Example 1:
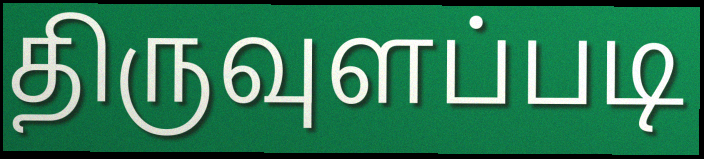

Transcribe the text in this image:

திருவுளப்படி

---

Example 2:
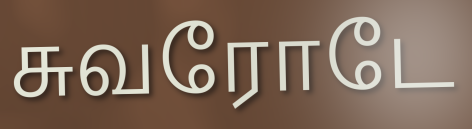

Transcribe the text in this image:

சுவரோடே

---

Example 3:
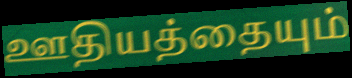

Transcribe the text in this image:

ஊதியத்தையும்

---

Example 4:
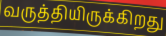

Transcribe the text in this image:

வருத்தியிருக்கிறது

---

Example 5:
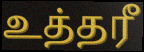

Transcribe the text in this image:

உத்தரீ